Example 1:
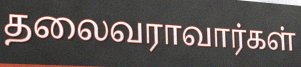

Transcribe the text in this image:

தலைவராவார்கள்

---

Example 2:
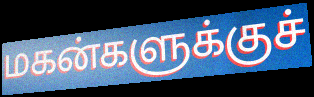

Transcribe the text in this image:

மகன்களுக்குச்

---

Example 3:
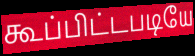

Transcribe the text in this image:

கூப்பிட்டபடியே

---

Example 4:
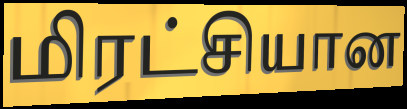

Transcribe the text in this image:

மிரட்சியான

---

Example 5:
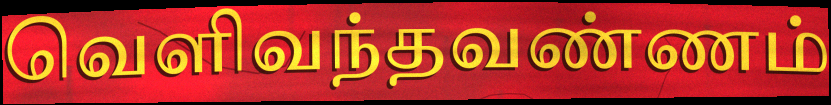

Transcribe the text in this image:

வெளிவந்தவண்ணம்